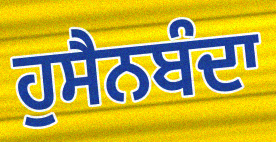
ਹੁਸੈਨਬੰਦਾ